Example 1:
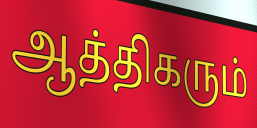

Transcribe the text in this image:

ஆத்திகரும்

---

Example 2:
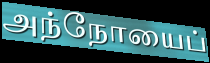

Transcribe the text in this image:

அந்நோயைப்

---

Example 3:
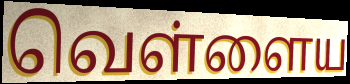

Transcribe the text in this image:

வெள்ளைய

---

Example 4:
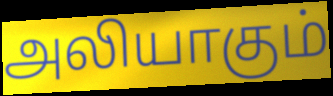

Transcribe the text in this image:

அலியாகும்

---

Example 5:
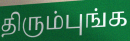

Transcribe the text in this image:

திரும்புங்க